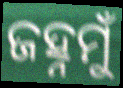
ଜହ୍ନମୁଁ